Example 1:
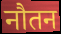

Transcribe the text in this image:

नौतन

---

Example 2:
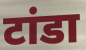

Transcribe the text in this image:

टांडा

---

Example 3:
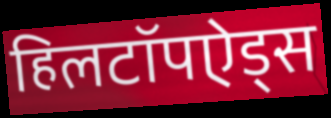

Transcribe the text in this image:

हिलटॉपऐड्स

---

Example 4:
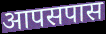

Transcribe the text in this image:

आपसपास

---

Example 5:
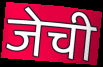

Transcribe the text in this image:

जेची